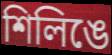
শিলিঙে